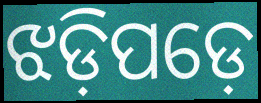
ଝଡ଼ିପଡ଼େ